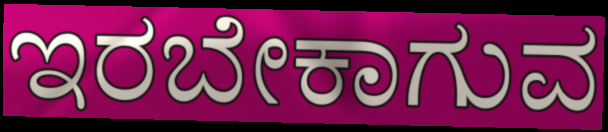
ಇರಬೇಕಾಗುವ